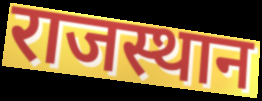
राजस्थान